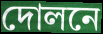
দোলনে